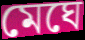
মেঘে